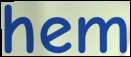
hem